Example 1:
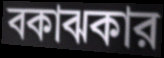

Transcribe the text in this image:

বকাঝকার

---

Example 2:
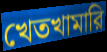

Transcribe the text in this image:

খেতখামারি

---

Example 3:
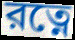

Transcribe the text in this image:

রত্নে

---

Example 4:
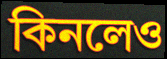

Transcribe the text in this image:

কিনলেও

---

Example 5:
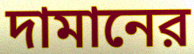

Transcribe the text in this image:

দামানের